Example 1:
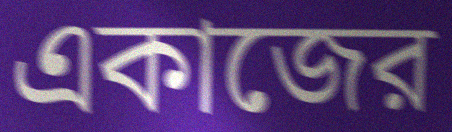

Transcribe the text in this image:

একাজের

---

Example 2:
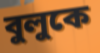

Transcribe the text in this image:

বুলুকে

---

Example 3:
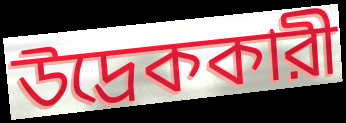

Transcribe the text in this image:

উদ্রেককারী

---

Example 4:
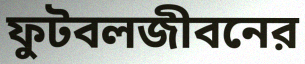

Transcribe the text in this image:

ফুটবলজীবনের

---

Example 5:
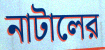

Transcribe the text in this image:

নাটালের